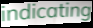
indicating